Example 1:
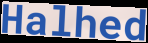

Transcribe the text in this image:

Halhed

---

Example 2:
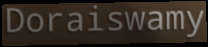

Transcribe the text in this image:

Doraiswamy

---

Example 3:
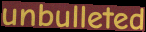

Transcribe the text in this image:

unbulleted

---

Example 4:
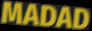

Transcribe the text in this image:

MADAD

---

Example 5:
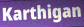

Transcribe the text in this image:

Karthigan